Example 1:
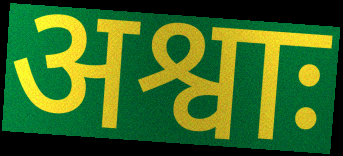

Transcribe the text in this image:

अश्वाः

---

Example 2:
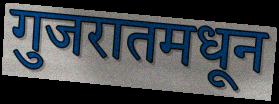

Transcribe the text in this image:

गुजरातमधून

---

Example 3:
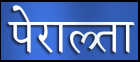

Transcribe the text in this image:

पेराल्ता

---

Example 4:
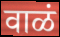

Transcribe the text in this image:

वाळं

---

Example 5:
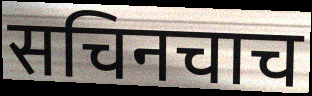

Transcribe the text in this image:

सचिनचाच